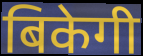
बिकेगी